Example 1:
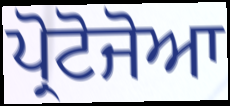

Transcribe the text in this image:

ਪ੍ਰੋਟੋਜੋਆ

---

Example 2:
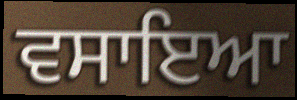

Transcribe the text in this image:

ਵਸਾਇਆ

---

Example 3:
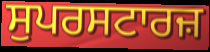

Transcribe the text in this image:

ਸੁਪਰਸਟਾਰਜ਼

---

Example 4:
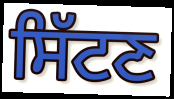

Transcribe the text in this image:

ਸਿੱਟਣ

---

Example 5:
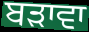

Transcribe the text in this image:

ਬੜਾਵਾ